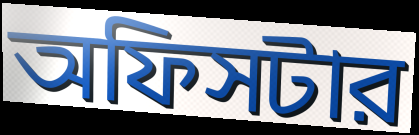
অফিসটার